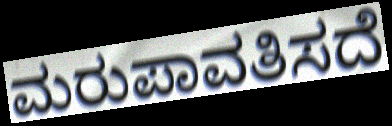
ಮರುಪಾವತಿಸದೆ